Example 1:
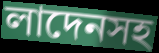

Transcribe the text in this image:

লাদেনসহ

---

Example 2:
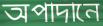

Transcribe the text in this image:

অপাদানে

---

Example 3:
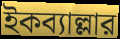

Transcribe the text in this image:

ইকব্যাল্লার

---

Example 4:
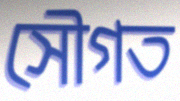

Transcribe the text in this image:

সৌগত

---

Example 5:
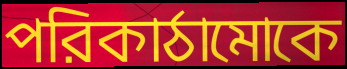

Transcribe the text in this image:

পরিকাঠামোকে